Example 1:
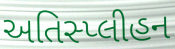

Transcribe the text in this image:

અતિસ્પ્લીહન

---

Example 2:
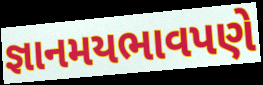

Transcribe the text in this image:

જ્ઞાનમયભાવપણે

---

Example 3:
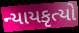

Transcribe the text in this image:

ન્યાયકૃત્યો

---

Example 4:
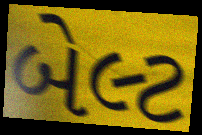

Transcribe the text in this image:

બેલ્ટ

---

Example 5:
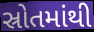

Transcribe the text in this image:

સ્રોતમાંથી